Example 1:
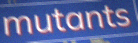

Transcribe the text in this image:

mutants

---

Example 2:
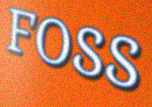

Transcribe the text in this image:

FOSS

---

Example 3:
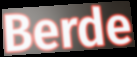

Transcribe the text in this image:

Berde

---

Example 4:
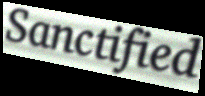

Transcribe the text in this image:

Sanctified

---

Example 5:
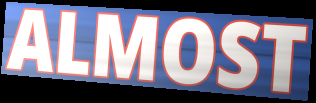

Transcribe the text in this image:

ALMOST